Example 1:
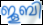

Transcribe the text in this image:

ജൂബി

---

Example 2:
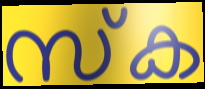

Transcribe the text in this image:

സ്ക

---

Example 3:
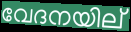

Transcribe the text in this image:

വേദനയില്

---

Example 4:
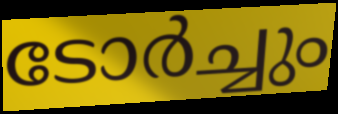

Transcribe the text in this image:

ടോർച്ചും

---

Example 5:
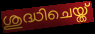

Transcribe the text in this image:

ശുദ്ധിചെയ്ത്